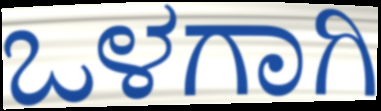
ಒಳಗಾಗಿ